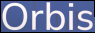
Orbis